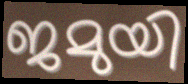
ജമുയി